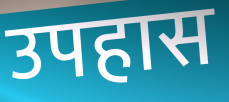
उपहास